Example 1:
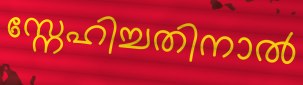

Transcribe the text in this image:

സ്നേഹിച്ചതിനാൽ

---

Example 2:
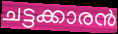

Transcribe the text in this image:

ചട്ടക്കാരൻ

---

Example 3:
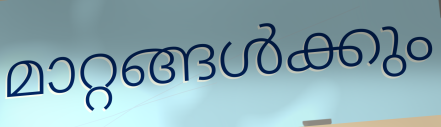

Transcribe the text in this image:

മാറ്റങ്ങൾക്കും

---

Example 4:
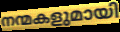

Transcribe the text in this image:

നന്മകളുമായി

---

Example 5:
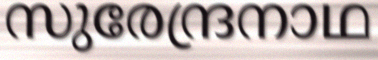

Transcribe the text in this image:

സുരേന്ദ്രനാഥ